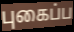
புகைப்ப